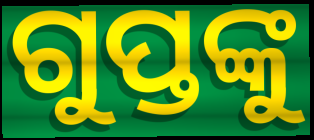
ଗୁପ୍ତଙ୍କୁ